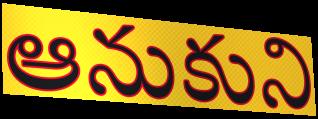
ఆనుకుని